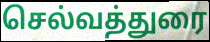
செல்வத்துரை